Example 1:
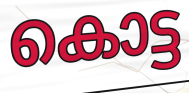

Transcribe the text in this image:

കൊട്ട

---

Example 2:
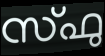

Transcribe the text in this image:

സ്ഫു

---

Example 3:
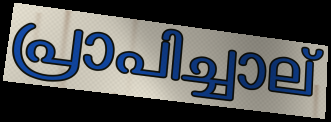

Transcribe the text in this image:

പ്രാപിച്ചാല്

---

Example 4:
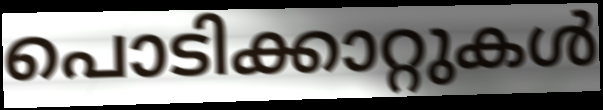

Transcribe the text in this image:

പൊടിക്കാറ്റുകൾ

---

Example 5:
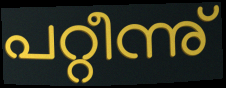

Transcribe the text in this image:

പറ്റീന്നു്